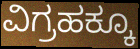
ವಿಗ್ರಹಕ್ಕೂ